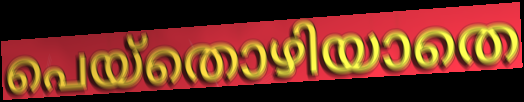
പെയ്തൊഴിയാതെ